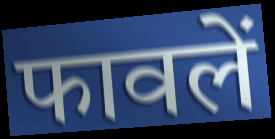
फावलें